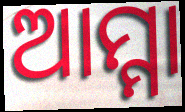
ଆମ୍ମା